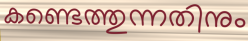
കണ്ടെത്തുന്നതിനും